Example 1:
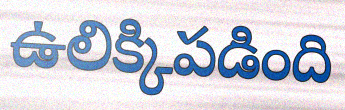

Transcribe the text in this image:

ఉలిక్కిపడింది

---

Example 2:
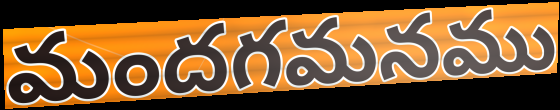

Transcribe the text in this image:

మందగమనము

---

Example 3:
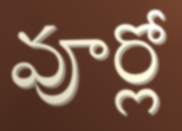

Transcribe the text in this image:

వూర్లో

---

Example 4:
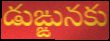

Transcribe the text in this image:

డుఙ్ఙునకు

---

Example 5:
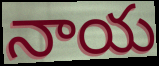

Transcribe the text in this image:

నాయ